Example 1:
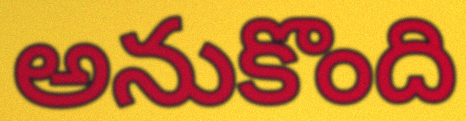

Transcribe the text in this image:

అనుకొంది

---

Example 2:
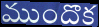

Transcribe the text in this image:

ముందొక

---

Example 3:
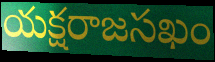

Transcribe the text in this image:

యక్షరాజసఖం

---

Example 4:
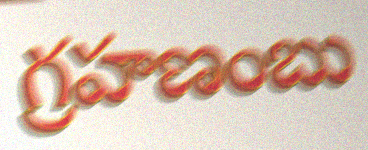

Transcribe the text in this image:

గ్రహణంబు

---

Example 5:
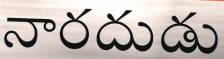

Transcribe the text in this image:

నారదుడు